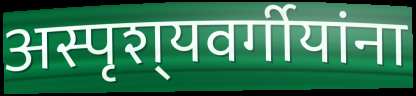
अस्पृश्यवर्गीयांना